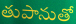
తుపానుతో